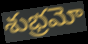
శుభ్రమో